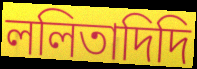
ললিতাদিদি